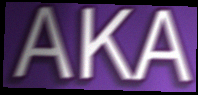
AKA